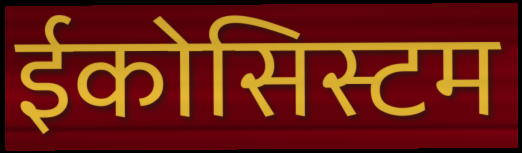
ईकोसिस्‍टम